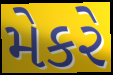
મેકરે